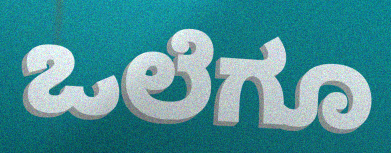
ಒಲೆಗೂ